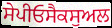
ਸੇਪੀਓਸੈਕਸੁਅਲ